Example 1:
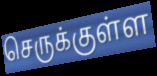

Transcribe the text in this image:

செருக்குள்ள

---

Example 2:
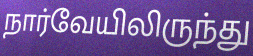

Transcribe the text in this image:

நார்வேயிலிருந்து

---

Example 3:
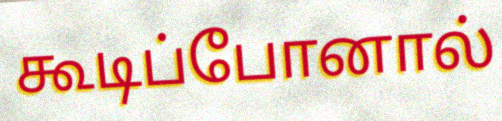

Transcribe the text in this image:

கூடிப்போனால்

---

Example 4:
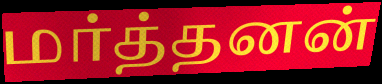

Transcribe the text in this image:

மர்த்தனன்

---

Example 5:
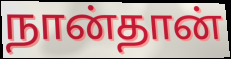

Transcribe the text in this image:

நான்தான்